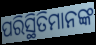
ପରିସ୍ଥିତିମାନଙ୍କ